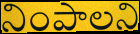
నింపాలని